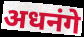
अधनंगे